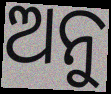
ଅନୁ